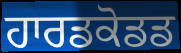
ਹਾਰਡਕੋਡਡ